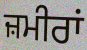
ਜ਼ਮੀਰਾਂ